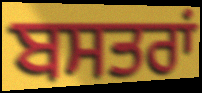
ਬਸਤਰਾਂ